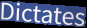
Dictates